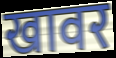
खावर